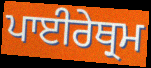
ਪਾਈਰੇਥ੍ਰਮ